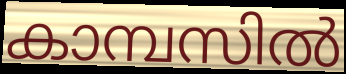
കാമ്പസിൽ